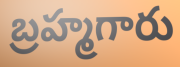
బ్రహ్మగారు